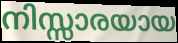
നിസ്സാരയായ